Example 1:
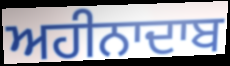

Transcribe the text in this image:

ਅਹੀਨਾਦਾਬ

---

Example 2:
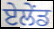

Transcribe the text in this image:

ਏਲੇਂਡ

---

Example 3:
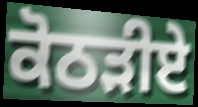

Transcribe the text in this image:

ਕੋਠੜੀਏ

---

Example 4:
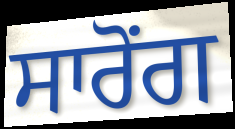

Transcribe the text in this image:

ਸਾਰੋਂਗ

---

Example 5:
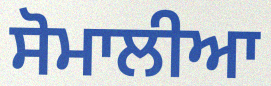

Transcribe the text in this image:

ਸੋਮਾਲੀਆ